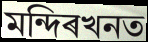
মন্দিৰখনত